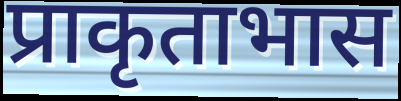
प्राकृताभास